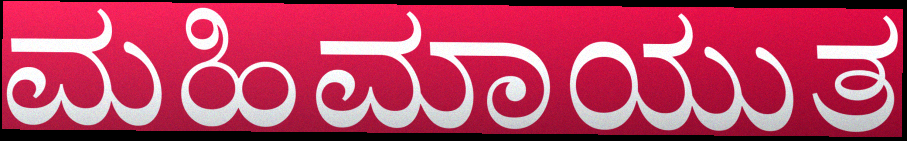
ಮಹಿಮಾಯುತ